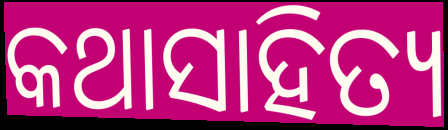
କଥାସାହିତ୍ୟ